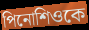
পিনোশিওকে